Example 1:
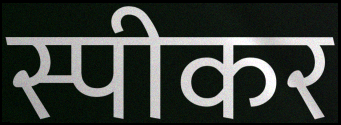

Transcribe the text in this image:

स्पीकर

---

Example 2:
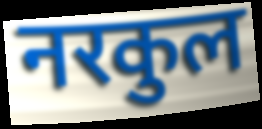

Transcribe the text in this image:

नरकुल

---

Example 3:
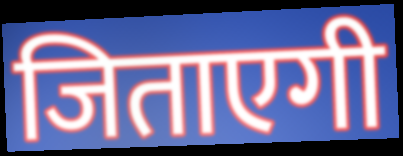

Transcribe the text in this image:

जिताएगी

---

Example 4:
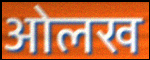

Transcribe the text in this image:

ओलख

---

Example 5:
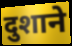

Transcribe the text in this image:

दुशाने